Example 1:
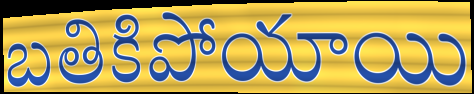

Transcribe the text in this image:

బతికిపోయాయి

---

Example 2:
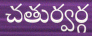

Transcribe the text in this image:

చతుర్వర్గ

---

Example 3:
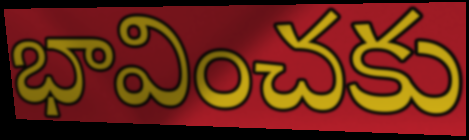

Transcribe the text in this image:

భావించకు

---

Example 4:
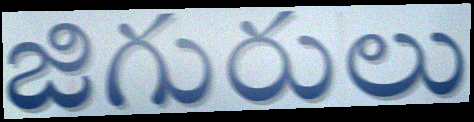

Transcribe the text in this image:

జిగురులు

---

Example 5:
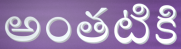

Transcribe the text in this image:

అంతటికి